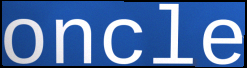
oncle